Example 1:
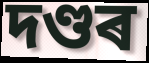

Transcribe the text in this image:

দণ্ডৰ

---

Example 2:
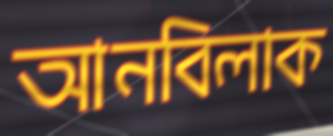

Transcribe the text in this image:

আনবিলাক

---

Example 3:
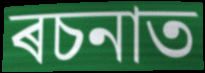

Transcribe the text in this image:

ৰচনাত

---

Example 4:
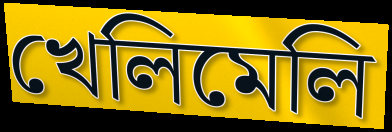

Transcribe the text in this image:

খেলিমেলি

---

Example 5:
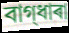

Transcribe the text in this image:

বাগ্‌ধাৰা